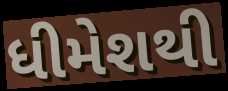
ધીમેશથી